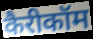
कैरीकॉम